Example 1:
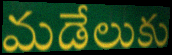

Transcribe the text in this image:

మడేలుకు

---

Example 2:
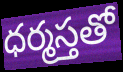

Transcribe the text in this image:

ధర్మస్తతో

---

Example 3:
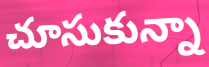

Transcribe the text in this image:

చూసుకున్నా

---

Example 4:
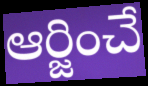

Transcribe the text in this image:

ఆర్జించే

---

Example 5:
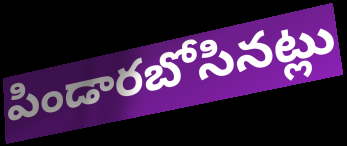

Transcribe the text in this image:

పిండారబోసినట్లు